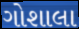
ગોશાલા